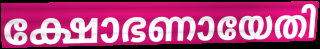
ക്ഷോഭണായേതി